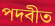
পদবীত